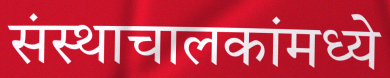
संस्थाचालकांमध्ये